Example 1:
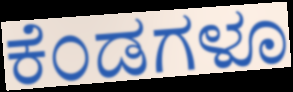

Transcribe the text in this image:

ಕೆಂಡಗಳೂ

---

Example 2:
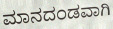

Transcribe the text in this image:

ಮಾನದಂಡವಾಗಿ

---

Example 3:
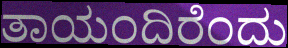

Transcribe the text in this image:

ತಾಯಂದಿರೆಂದು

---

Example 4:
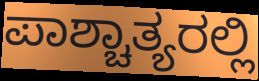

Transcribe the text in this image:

ಪಾಶ್ಚಾತ್ಯರಲ್ಲಿ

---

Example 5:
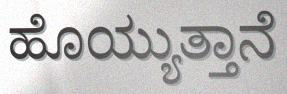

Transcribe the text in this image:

ಹೊಯ್ಯುತ್ತಾನೆ